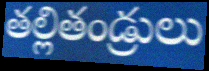
తల్లితండ్రులు